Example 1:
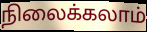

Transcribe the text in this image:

நிலைக்கலாம்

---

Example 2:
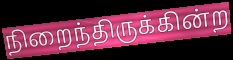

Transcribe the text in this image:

நிறைந்திருக்கின்ற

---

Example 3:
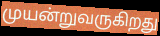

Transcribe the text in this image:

முயன்றுவருகிறது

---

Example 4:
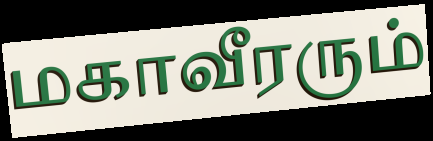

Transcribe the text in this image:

மகாவீரரும்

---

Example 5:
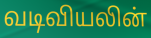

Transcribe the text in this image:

வடிவியலின்